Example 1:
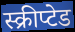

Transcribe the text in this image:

स्क्रीप्टेड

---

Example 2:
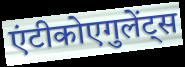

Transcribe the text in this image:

एंटीकोएगुलेंट्स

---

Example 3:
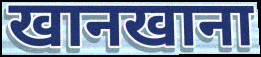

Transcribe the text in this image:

खानखाना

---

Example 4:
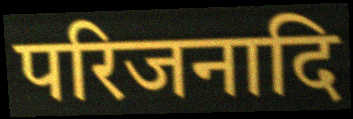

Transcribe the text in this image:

परिजनादि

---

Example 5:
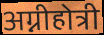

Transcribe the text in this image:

अग्नीहोत्री